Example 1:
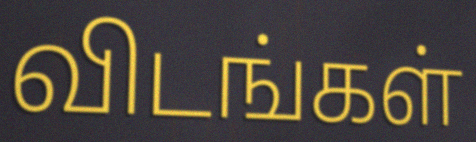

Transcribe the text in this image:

விடங்கள்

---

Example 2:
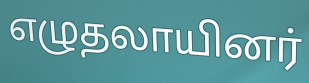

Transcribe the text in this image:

எழுதலாயினர்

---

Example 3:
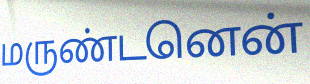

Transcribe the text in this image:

மருண்டனென்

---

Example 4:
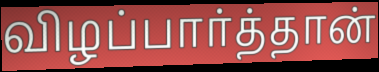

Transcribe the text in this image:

விழப்பார்த்தான்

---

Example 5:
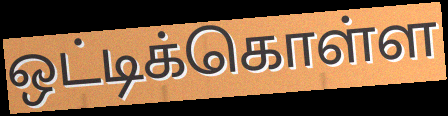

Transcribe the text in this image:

ஒட்டிக்கொள்ள